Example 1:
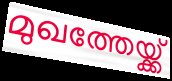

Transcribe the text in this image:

മുഖത്തേയ്ക്ക്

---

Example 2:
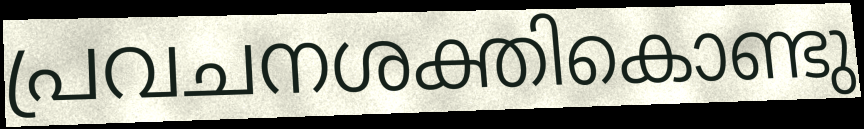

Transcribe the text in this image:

പ്രവചനശക്തികൊണ്ടു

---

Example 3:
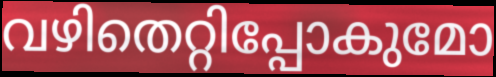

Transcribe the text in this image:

വഴിതെറ്റിപ്പോകുമോ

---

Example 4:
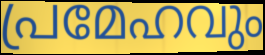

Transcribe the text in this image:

പ്രമേഹവും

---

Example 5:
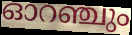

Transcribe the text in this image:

ഓറഞ്ചും